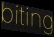
biting